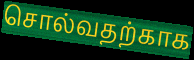
சொல்வதற்காக